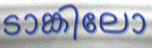
ടാങ്കിലോ